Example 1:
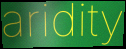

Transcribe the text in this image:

aridity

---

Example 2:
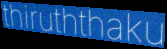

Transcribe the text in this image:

thiruththaku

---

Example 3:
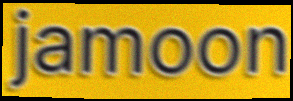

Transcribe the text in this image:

jamoon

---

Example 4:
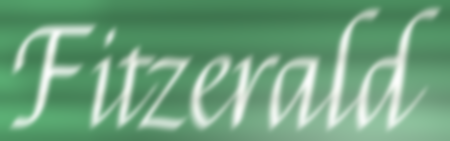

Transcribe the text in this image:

Fitzerald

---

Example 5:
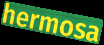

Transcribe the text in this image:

hermosa